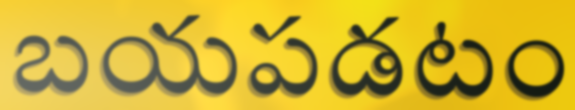
బయపడటం